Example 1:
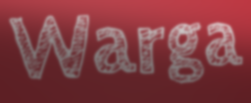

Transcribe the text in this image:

Warga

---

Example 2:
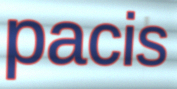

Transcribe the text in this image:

pacis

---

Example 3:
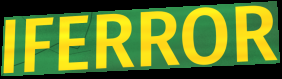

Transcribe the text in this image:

IFERROR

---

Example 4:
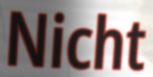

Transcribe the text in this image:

Nicht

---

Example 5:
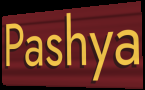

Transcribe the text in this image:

Pashya